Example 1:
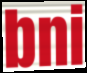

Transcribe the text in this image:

bni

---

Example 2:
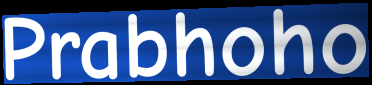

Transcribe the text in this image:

Prabhoho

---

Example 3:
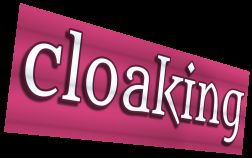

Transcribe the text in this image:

cloaking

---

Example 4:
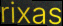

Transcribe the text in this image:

rixas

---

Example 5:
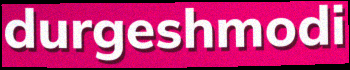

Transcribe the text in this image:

durgeshmodi